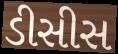
ડીસીસ